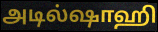
அடில்ஷாஹி